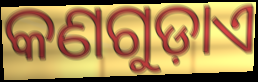
କଣଗୁଡ଼ାଏ